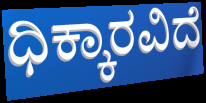
ಧಿಕ್ಕಾರವಿದೆ